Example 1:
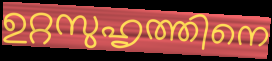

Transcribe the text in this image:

ഉറ്റസുഹൃത്തിനെ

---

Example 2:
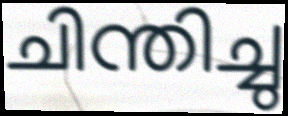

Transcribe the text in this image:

ചിന്തിച്ചു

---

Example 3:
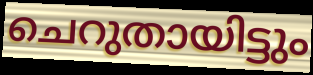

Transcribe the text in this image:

ചെറുതായിട്ടും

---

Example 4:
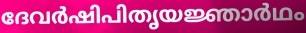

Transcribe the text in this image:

ദേവർഷിപിതൃയജ്ഞാർഥം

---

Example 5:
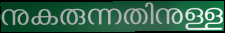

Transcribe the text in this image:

നുകരുന്നതിനുള്ള